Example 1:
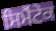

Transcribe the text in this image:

ਸਿਮੈਂਟੇਕ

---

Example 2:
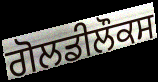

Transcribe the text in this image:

ਗੋਲਡੀਲੌਕਸ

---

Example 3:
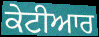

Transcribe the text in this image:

ਕੇਟੀਆਰ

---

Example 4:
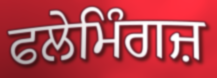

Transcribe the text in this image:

ਫਲੇਮਿੰਗਜ਼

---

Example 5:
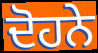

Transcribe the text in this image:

ਦੋਹਨੇ